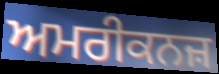
ਅਮਰੀਕਨਜ਼